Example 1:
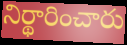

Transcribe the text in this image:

నిర్థారించారు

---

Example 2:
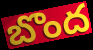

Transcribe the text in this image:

బొంద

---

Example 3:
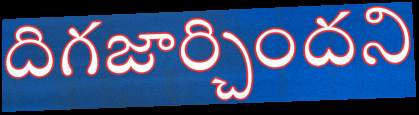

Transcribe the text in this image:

దిగజార్చిందని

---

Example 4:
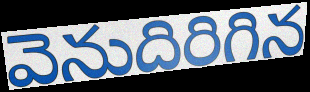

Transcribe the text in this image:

వెనుదిరిగిన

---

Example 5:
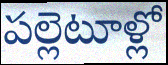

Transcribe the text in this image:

పల్లెటూళ్లో